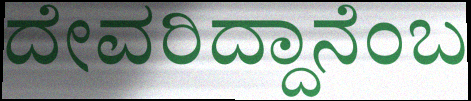
ದೇವರಿದ್ದಾನೆಂಬ